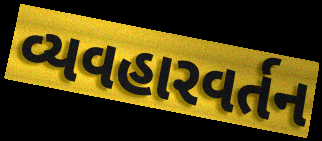
વ્યવહારવર્તન